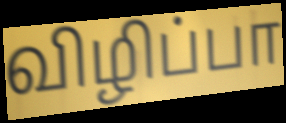
விழிப்பா